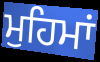
ਮੁਹਿਮਾਂ